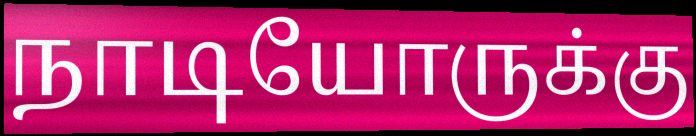
நாடியோருக்கு